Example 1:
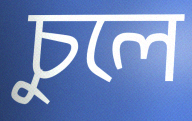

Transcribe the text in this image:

চুলে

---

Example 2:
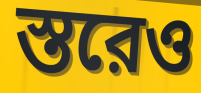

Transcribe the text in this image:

স্তরেও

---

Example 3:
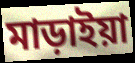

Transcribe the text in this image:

মাড়াইয়া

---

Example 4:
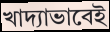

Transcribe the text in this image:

খাদ্যাভাবেই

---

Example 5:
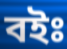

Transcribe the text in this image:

বইঃ